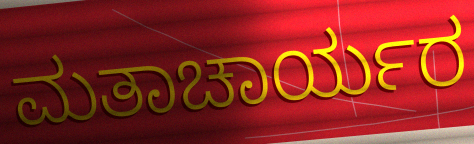
ಮತಾಚಾರ್ಯರ